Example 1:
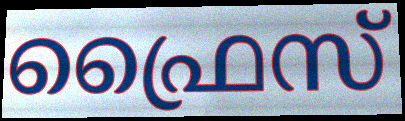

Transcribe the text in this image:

ഫ്രൈസ്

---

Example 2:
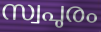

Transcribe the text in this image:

സ്വപുരം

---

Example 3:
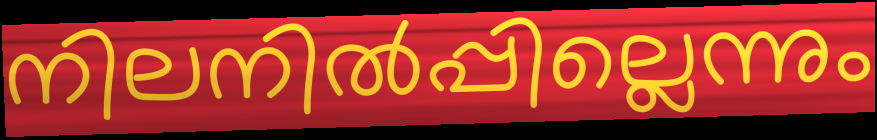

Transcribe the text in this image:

നിലനിൽപ്പില്ലെന്നും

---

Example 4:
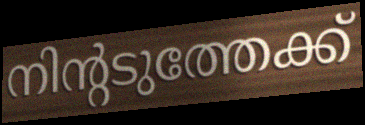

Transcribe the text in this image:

നിന്റടുത്തേക്ക്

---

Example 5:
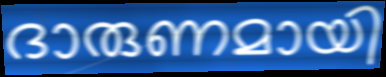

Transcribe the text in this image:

ദാരുണമായി